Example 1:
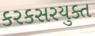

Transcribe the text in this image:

કરકસરયુક્ત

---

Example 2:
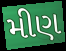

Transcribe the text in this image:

મીણ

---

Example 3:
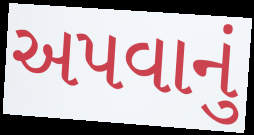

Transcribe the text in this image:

અપવાનું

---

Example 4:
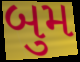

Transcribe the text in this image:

બુમ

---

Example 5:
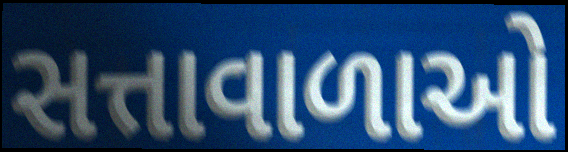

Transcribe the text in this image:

સત્તાવાળાઓ